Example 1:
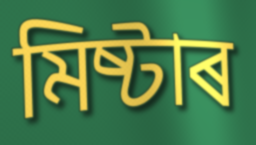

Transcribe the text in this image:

মিষ্টাৰ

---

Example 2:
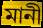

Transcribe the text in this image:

মানী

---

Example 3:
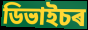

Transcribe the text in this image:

ডিভাইচৰ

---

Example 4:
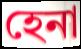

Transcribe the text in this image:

হেনা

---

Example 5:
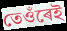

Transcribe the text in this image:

তেওঁৰেই